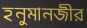
হনুমানজীর